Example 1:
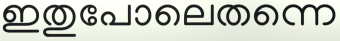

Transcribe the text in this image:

ഇതുപോലെതന്നെ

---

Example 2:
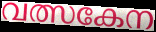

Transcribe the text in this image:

വത്സകേന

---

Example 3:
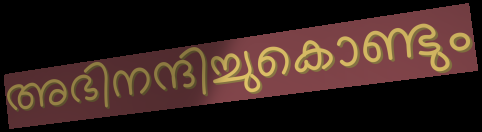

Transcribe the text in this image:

അഭിനന്ദിച്ചുകൊണ്ടും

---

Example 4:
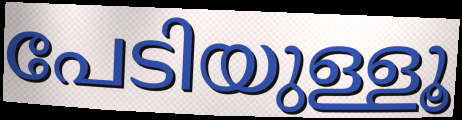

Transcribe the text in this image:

പേടിയുള്ളൂ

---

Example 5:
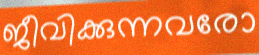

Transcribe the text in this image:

ജീവിക്കുന്നവരോ